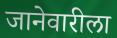
जानेवारीला